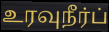
உரவுநீர்ப்